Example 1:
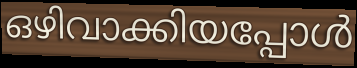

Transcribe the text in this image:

ഒഴിവാക്കിയപ്പോൾ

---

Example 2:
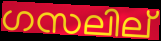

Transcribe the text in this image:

ഗസലില്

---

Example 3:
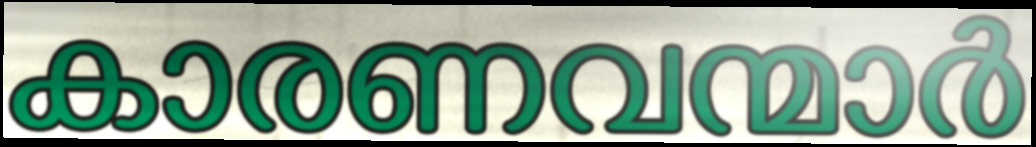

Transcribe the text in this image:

കാരണവന്മാർ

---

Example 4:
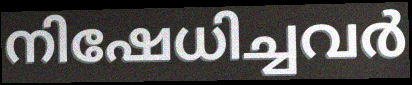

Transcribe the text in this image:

നിഷേധിച്ചവർ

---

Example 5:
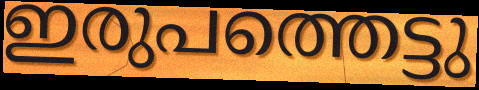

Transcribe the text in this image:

ഇരുപത്തെട്ടു